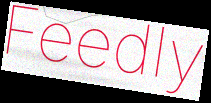
Feedly